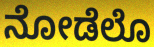
ನೋಡೆಲೊ